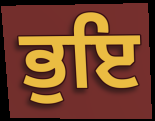
ਭੁਇ